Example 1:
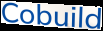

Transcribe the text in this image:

Cobuild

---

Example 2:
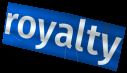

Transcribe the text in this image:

royalty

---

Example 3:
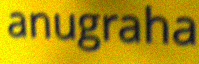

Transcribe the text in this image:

anugraha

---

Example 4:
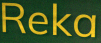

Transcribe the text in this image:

Reka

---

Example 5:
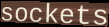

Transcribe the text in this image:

sockets